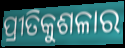
ପ୍ରୀତିକୁଶଳାର